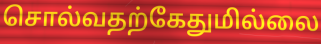
சொல்வதற்கேதுமில்லை